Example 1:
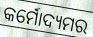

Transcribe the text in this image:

କର୍ମୋଦ୍ୟମର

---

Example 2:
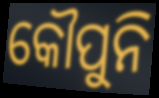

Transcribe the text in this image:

କୌପୁନି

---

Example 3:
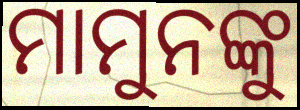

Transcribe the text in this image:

ମାମୁନଙ୍କୁ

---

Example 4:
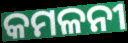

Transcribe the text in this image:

କମଳନୀ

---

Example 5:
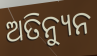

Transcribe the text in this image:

ଅତିନ୍ୟୁନ